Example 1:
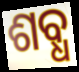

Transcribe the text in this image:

ଶବ୍ଧ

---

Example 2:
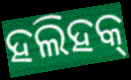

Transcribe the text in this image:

ହଲିହକ୍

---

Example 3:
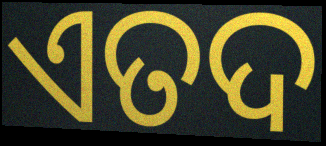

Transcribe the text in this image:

ଏତଦ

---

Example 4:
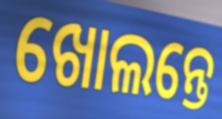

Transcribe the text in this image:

ଖୋଲନ୍ତେ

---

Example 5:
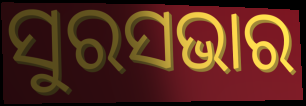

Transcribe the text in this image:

ସୁରସଭାର